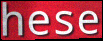
hese